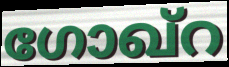
ഗോഖ്റ